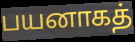
பயனாகத்